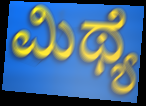
ಮಿಥ್ಯೆ